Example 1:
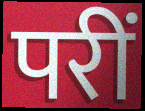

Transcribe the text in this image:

परीं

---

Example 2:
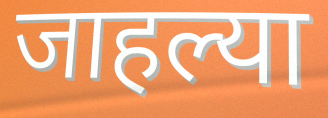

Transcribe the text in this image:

जाहल्या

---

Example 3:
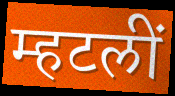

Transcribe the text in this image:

म्हटलीं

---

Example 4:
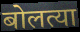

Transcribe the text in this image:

बोलत्या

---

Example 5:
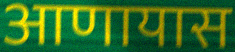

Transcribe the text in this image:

आणायास